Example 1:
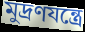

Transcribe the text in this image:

মুদ্রণযন্ত্রে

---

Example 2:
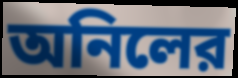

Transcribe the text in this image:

অনিলের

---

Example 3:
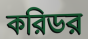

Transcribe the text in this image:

করিডর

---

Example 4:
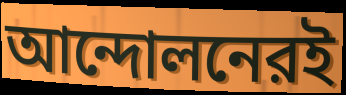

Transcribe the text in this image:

আন্দোলনেরই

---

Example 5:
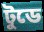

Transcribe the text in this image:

টুডে